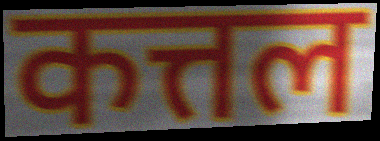
कत्तल